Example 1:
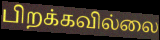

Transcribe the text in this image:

பிறக்கவில்லை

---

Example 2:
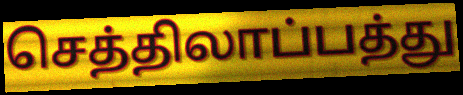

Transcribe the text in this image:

செத்திலாப்பத்து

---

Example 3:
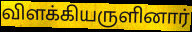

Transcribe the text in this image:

விளக்கியருளினார்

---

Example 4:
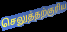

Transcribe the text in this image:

செலுத்தற்குரிய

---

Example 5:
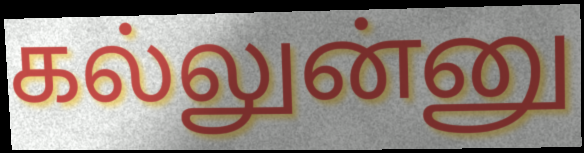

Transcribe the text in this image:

கல்லுன்னு